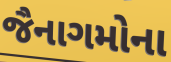
જૈનાગમોના